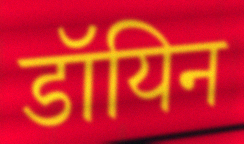
डॉयिन